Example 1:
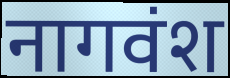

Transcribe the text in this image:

नागवंश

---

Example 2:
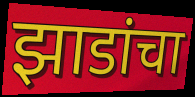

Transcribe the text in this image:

झाडांचा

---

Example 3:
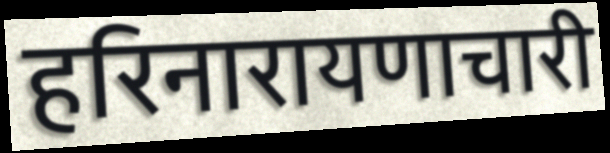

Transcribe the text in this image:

हरिनारायणाचारी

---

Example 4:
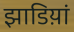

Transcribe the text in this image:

झाडिय़ां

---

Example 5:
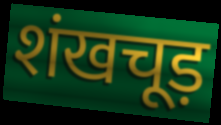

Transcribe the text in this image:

शंखचूड़